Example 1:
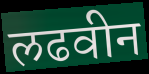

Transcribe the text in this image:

लढवीन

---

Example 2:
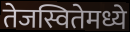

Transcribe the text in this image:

तेजस्वितेमध्ये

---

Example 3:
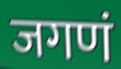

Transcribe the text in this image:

जगणं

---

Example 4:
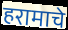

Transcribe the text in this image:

हरामाचे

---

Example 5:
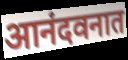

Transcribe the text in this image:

आनंदवनात